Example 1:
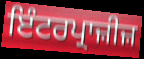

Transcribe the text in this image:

ਇੰਟਰਪ੍ਰਾਜ਼ੀਜ਼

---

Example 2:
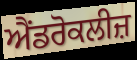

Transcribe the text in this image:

ਐਂਡਰੋਕਲੀਜ਼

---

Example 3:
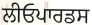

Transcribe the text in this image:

ਲੀਓਪਾਰਡਸ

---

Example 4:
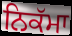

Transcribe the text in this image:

ਨਿਕੱਮਾ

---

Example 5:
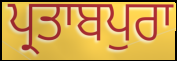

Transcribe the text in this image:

ਪ੍ਰਤਾਬਪੁਰਾ